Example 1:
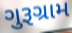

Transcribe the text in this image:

ગુરૂગ્રામ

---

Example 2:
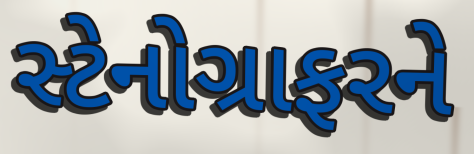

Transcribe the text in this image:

સ્ટેનોગ્રાફરને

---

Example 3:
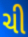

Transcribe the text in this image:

ચી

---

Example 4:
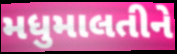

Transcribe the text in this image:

મધુમાલતીને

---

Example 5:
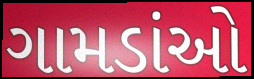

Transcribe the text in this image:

ગામડાંઓ